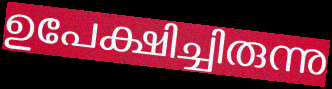
ഉപേക്ഷിച്ചിരുന്നു